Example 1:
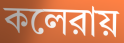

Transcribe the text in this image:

কলেরায়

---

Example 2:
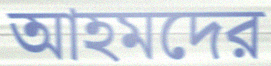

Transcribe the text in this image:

আহমদের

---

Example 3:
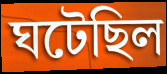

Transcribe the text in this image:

ঘটেছিল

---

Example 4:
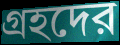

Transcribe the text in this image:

গ্রহদের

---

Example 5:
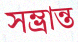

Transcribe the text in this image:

সম্ভ্রান্ত